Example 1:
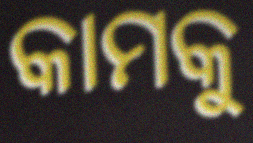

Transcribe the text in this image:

କାମକୁ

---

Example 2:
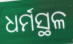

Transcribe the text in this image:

ଧର୍ମସ୍ଥଳ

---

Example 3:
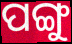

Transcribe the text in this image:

ପଙ୍ଗୁ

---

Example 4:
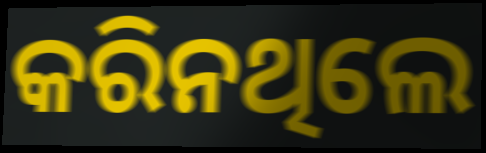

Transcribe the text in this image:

କରିନଥିଲେ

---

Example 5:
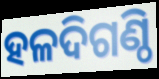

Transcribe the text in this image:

ହଳଦିଗଣ୍ଠି